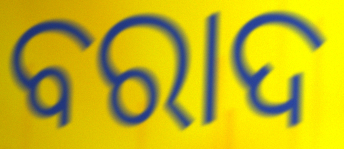
ବରାଦ